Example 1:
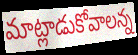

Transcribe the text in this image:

మాట్లాడుకోవాలన్న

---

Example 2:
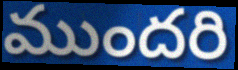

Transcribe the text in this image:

ముందరి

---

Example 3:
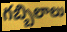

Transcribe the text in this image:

గబ్బిలాలు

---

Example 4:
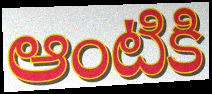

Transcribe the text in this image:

ఆంటికి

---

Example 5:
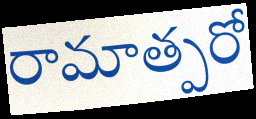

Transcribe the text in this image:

రామాత్పరో